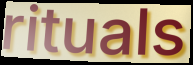
rituals